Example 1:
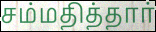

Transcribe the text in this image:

சம்மதித்தார்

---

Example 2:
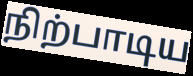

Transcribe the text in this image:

நிற்பாடிய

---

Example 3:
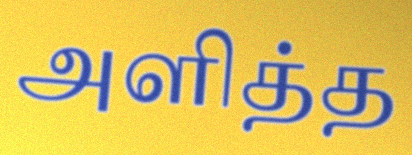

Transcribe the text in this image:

அளித்த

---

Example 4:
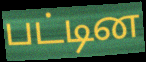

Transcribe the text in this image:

பட்டின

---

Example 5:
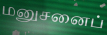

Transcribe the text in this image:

மனுசனைப்